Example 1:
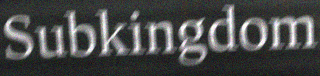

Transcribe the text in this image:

Subkingdom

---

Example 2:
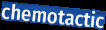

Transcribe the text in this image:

chemotactic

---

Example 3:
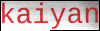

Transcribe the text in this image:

kaiyan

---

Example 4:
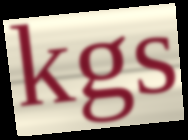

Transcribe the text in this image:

kgs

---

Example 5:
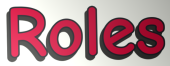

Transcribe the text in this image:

Roles